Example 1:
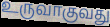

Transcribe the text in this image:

உருவாகுவது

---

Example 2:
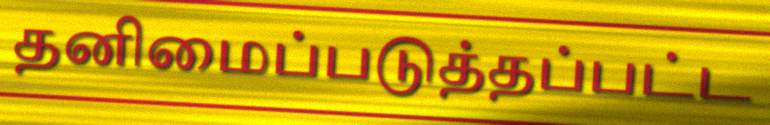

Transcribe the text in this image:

தனிமைப்படுத்தப்பட்ட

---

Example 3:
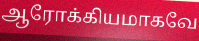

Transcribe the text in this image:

ஆரோக்கியமாகவே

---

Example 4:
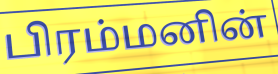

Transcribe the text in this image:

பிரம்மனின்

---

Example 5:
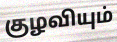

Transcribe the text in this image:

குழவியும்